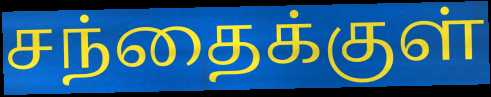
சந்தைக்குள்